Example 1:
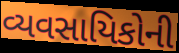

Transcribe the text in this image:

વ્યવસાયિકોની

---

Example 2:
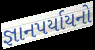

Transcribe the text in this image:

જ્ઞાનપર્યાયનો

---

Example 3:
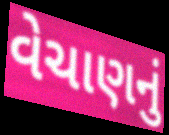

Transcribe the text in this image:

વેચાણનું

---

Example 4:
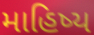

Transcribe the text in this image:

માહિષ્ય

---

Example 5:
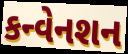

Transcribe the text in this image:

કન્વેનશન